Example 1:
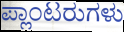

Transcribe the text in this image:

ಪ್ಲಾಂಟರುಗಳು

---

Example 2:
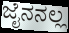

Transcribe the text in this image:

ಜೈನನಲ್ಲ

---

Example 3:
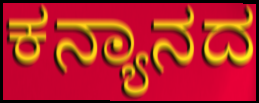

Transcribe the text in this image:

ಕನ್ಯಾನದ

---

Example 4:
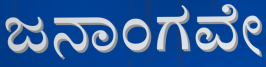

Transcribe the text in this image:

ಜನಾಂಗವೇ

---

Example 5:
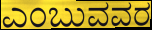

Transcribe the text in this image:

ಎಂಬುವವರ